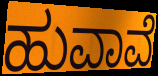
ಹುವಾವೆ